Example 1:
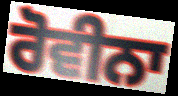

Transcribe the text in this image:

ਰੋਵੀਨਾ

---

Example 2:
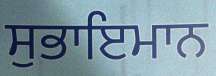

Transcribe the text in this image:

ਸੁਭਾਇਮਾਨ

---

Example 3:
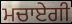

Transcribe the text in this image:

ਮਚਾਏਗੀ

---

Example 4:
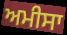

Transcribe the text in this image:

ਅਮੀਸਾ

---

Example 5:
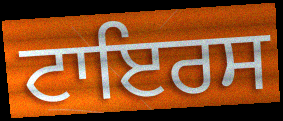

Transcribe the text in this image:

ਟਾਇਰਸ